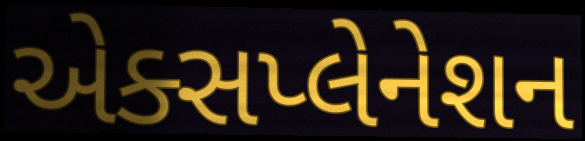
એક્સપ્લેનેશન